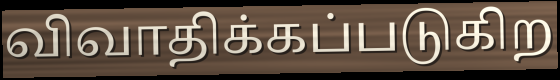
விவாதிக்கப்படுகிற